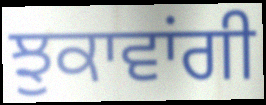
ਝੁਕਾਵਾਂਗੀ